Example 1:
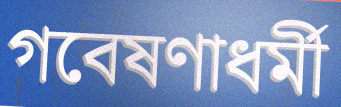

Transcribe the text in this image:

গবেষণাধর্মী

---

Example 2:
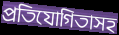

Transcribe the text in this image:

প্রতিযোগিতাসহ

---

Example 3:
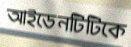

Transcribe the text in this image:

আইডেনটিটিকে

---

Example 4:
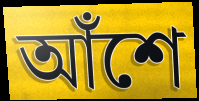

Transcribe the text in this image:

আঁশে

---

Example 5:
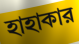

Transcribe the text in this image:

হাহাকার